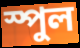
স্পুল